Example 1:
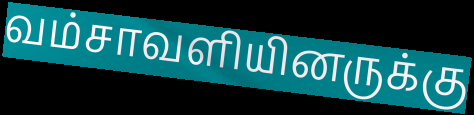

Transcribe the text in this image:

வம்சாவளியினருக்கு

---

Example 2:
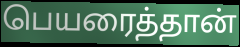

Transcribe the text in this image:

பெயரைத்தான்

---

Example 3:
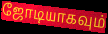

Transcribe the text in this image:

ஜோடியாகவும்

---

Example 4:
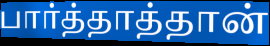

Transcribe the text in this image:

பார்த்தாத்தான்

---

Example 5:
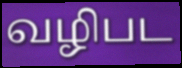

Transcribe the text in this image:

வழிபட